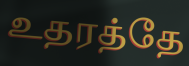
உதரத்தே